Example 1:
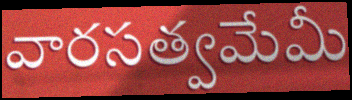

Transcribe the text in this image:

వారసత్వమేమీ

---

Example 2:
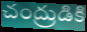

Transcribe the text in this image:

చంద్రుడికి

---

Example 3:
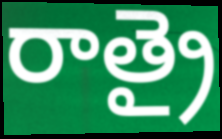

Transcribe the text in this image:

రాత్రై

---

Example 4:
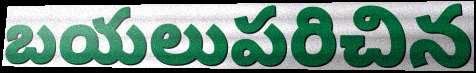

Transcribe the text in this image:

బయలుపరిచిన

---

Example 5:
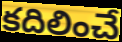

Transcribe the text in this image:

కదిలించే